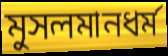
মুসলমানধর্ম